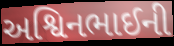
અશ્વિનભાઈની